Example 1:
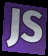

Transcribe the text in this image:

JS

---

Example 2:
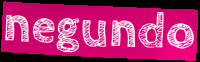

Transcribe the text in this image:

negundo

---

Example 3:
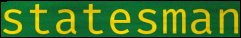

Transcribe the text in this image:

statesman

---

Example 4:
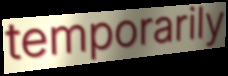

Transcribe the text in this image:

temporarily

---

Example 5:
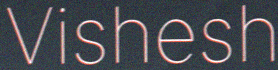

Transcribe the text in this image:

Vishesh